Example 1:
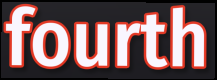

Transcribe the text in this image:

fourth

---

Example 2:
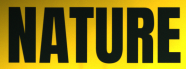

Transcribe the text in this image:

NATURE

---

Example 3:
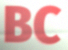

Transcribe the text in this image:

BC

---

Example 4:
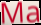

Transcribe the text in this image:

Ma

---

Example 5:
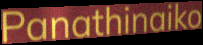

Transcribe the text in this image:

Panathinaiko